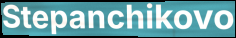
Stepanchikovo